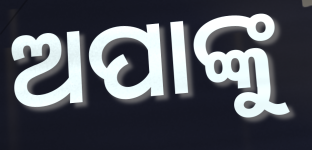
ଅପାଙ୍କୁ